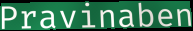
Pravinaben